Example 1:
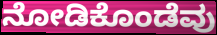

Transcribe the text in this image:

ನೋಡಿಕೊಂಡೆವು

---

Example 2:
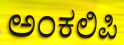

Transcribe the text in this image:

ಅಂಕಲಿಪಿ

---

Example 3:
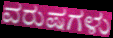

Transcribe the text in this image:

ವರುಷಗಳು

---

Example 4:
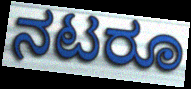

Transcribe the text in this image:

ನಟರೂ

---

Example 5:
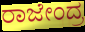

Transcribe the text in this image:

ರಾಜೇಂದ್ರ